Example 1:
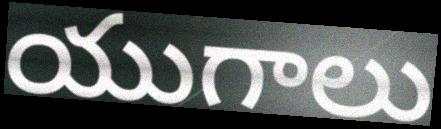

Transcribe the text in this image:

యుగాలు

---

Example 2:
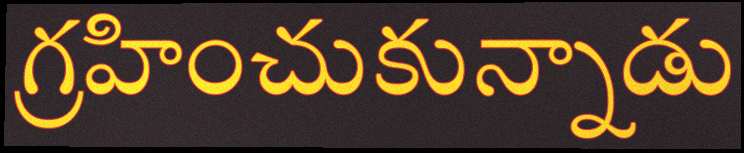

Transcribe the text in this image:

గ్రహించుకున్నాడు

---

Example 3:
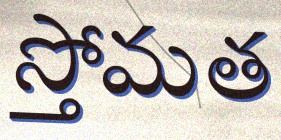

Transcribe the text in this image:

స్తోమత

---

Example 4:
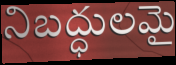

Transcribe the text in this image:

నిబద్ధులమై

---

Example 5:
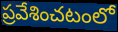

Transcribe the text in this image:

ప్రవేశించటంలో